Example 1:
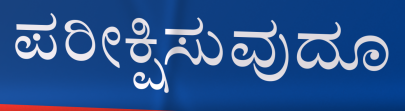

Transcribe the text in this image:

ಪರೀಕ್ಷಿಸುವುದೂ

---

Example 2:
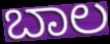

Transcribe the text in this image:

ಬಾಲ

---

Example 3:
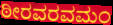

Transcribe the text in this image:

ಠೀರವರವಮಂ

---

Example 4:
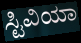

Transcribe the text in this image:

ಸ್ಟಿವಿಯಾ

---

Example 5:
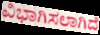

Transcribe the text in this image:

ವಿಭಾಗಿಸಲಾಗಿದೆ